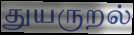
துயருறல்